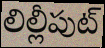
లిల్లీపుట్